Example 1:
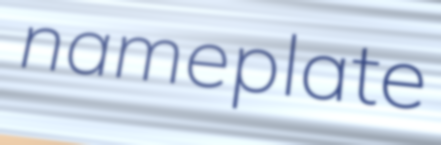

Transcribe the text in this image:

nameplate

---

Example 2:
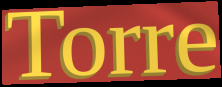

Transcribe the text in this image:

Torre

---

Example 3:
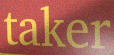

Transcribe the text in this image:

taker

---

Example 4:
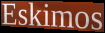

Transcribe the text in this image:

Eskimos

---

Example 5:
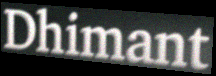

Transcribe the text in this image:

Dhimant